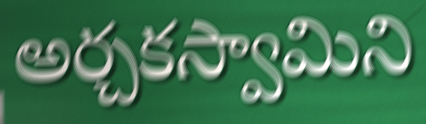
అర్చకస్వామిని